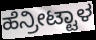
ಹೆನ್ರೀಟ್ಟಾಳ